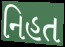
નિહત